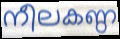
നീലകണ്ഠ